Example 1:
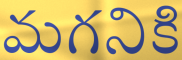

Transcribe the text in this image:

మగనికి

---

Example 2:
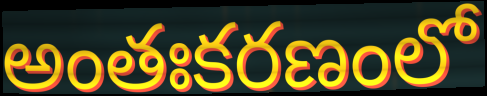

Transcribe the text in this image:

అంతఃకరణంలో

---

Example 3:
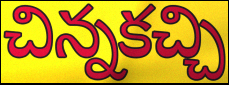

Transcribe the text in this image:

చిన్నకచ్చి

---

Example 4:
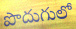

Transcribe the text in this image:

పొదుగులో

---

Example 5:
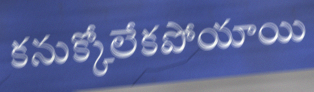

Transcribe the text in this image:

కనుక్కోలేకపోయాయి